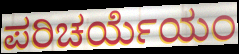
ಪರಿಚರ್ಯೆಯಂ